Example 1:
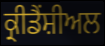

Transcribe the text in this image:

ਕ੍ਰੀਡੈਂਸ਼ੀਅਲ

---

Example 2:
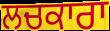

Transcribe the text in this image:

ਲਚਕਾਰਾ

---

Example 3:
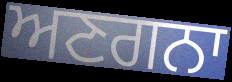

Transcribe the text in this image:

ਅਣਗਨਾ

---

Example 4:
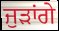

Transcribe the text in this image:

ਜੁੜਾਂਗੇ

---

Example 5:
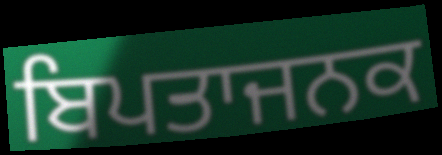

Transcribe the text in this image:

ਬਿਪਤਾਜਨਕ